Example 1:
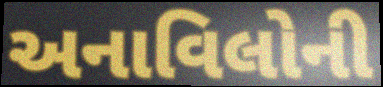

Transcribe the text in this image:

અનાવિલોની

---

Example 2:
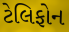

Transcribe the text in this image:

ટેલિફોન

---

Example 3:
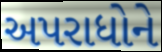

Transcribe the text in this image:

અપરાધોને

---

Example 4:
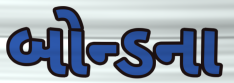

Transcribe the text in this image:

બોન્ડના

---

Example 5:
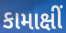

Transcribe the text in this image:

કામાક્ષીં